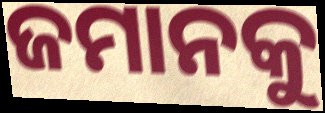
ଜମାନକୁ